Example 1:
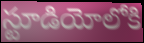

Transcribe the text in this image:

స్టూడియోలోకి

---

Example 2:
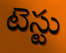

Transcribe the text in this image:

టెస్టు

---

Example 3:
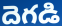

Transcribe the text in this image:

దెగడి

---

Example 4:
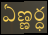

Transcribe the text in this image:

ఏణ్ణర్ధ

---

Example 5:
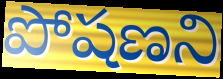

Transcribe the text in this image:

పోషణని